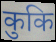
कुकि